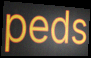
peds